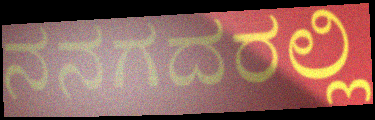
ನನಗದರಲ್ಲಿ